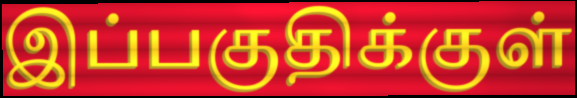
இப்பகுதிக்குள்